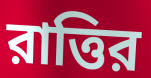
রাত্তির